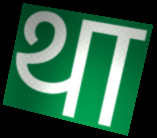
था